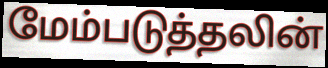
மேம்படுத்தலின்